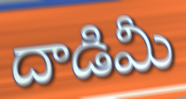
దాడిమీ